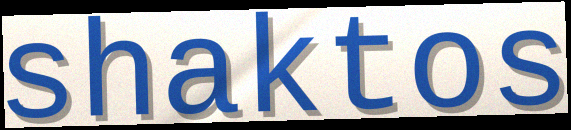
shaktos